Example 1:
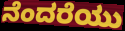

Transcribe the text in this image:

ನೆಂದರೆಯು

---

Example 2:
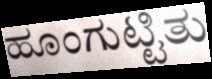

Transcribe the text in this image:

ಹೂಂಗುಟ್ಟಿತು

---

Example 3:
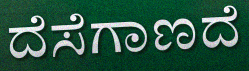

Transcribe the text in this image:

ದೆಸೆಗಾಣದೆ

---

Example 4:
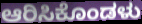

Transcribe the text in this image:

ಆರಿಸಿಕೊಂಡಳು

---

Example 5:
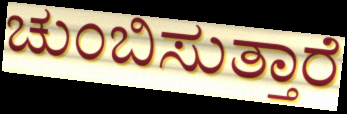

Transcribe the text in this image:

ಚುಂಬಿಸುತ್ತಾರೆ